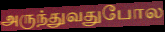
அருந்துவதுபோல